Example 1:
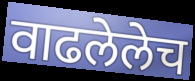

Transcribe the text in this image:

वाढलेलेच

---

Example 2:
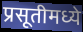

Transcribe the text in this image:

प्रसूतीमध्ये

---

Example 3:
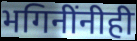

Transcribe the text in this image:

भगिनींनीही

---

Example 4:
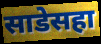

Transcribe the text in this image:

साडेसहा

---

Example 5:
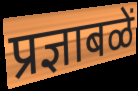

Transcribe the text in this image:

प्रज्ञाबळें